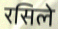
रसिले